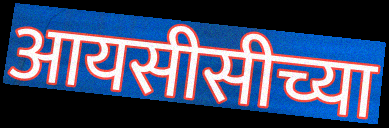
आयसीसीच्या